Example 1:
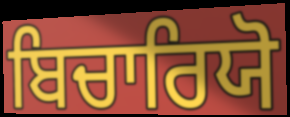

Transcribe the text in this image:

ਬਿਚਾਰਿਯੋ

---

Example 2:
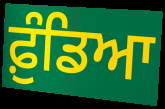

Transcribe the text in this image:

ਫ਼ੁੰਡਿਆ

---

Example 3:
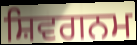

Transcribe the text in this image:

ਸ਼ਿਵਗਨਮ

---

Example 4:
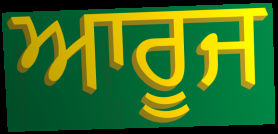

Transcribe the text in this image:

ਆਰੂਜ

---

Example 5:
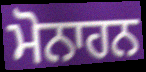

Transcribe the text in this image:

ਮੋਨਾਹਨ